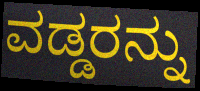
ವಡ್ಡರನ್ನು